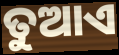
ତୁଆଏ